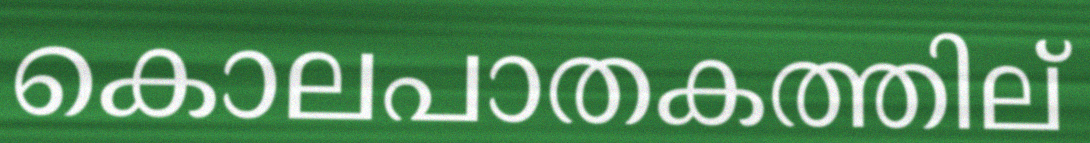
കൊലപാതകത്തില്